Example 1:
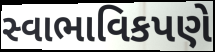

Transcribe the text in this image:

સ્વાભાવિકપણે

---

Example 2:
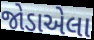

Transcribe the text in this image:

જોડાએલા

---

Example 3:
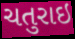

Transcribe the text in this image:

ચતુરાઇ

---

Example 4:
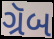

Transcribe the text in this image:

ગ્રૅબ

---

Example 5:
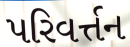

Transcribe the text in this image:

પરિવર્ત્તન